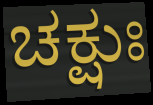
ಚಕ್ಷುಃ